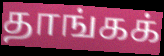
தாங்கக்